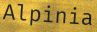
Alpinia